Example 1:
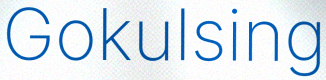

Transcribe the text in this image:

Gokulsing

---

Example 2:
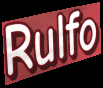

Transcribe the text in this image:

Rulfo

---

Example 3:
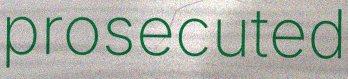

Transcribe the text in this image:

prosecuted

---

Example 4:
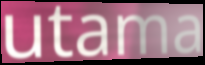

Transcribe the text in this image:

utama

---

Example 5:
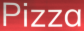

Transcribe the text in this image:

Pizza